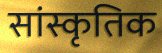
सांस्‍कृतिक